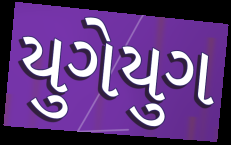
યુગેયુગ